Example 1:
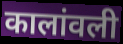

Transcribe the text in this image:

कालांवली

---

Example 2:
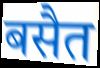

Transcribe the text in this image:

बसैत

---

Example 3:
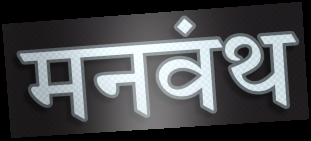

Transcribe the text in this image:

मनवंथ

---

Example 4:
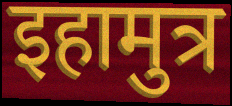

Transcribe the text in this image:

इहामुत्र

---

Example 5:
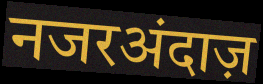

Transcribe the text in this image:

नजरअंदाज़